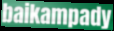
baikampady